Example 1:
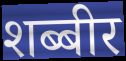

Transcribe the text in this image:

शब्बीर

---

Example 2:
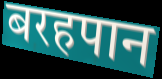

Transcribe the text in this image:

बरहपान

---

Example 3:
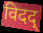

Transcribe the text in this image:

विदद्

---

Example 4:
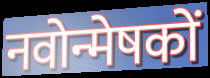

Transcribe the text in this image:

नवोन्‍मेषकों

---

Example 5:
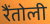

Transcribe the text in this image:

रैंतोली